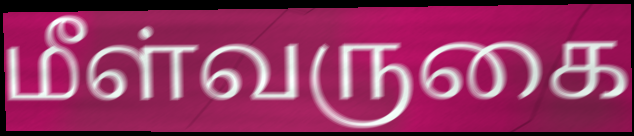
மீள்வருகை